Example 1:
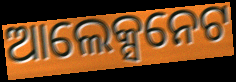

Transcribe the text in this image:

ଆଲେକ୍ସନେଟ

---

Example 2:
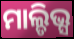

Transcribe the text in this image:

ମାଲ୍ଡିଭ୍ସ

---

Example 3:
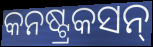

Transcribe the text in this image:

କନଷ୍ଟ୍ରକସନ୍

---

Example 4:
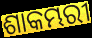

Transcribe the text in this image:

ଶାକମ୍ଭରୀ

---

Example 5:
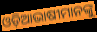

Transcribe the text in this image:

ଓଡ଼ିଆଭାଷୀମାନଙ୍କୁ